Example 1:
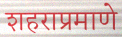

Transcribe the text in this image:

शहराप्रमाणे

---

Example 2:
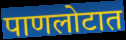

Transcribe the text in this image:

पाणलोटात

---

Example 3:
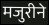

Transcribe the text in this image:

मजुरीने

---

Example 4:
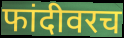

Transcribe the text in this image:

फांदीवरच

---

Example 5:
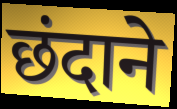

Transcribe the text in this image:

छंदाने